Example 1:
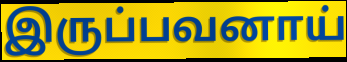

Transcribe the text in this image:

இருப்பவனாய்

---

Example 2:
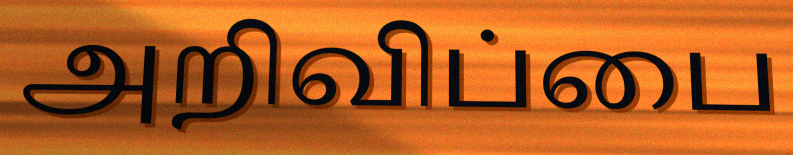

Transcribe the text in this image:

அறிவிப்பை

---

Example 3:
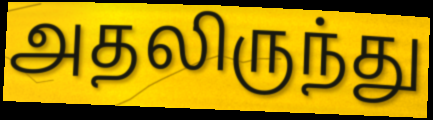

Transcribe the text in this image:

அதலிருந்து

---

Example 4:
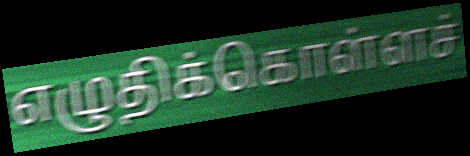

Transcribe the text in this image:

எழுதிக்கொள்ளச்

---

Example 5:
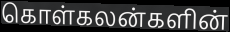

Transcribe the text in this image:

கொள்கலன்களின்